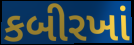
કબીરખાં